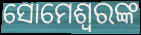
ସୋମେଶ୍ୱରଙ୍କ